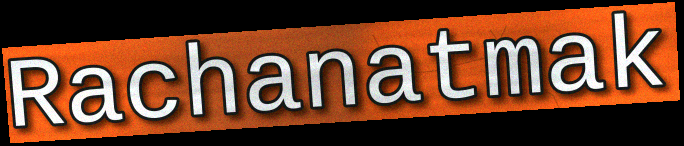
Rachanatmak